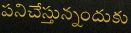
పనిచేస్తున్నందుకు